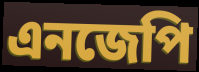
এনজেপি